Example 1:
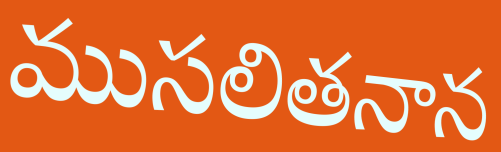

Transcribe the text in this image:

ముసలితనాన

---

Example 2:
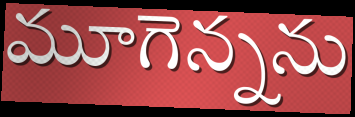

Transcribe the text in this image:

మూగెన్నను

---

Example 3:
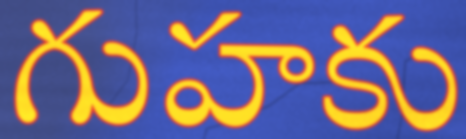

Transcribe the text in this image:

గుహకు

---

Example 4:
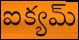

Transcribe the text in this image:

ఐక్యమ్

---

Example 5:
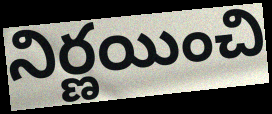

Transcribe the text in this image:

నిర్ణయించి